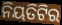
ନିୟତିଟିର